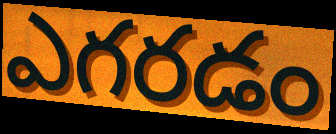
ఎగరడం